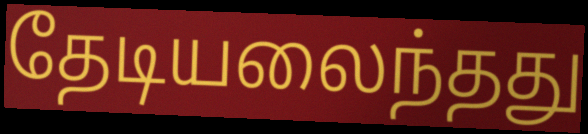
தேடியலைந்தது